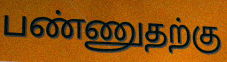
பண்ணுதற்கு